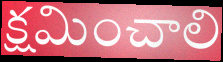
క్షమించాలి